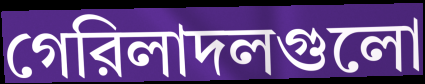
গেরিলাদলগুলো